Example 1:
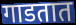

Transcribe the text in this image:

गाडतात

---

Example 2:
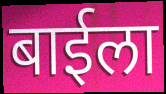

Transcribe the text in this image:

बाईला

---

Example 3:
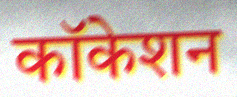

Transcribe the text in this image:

कॉकेशन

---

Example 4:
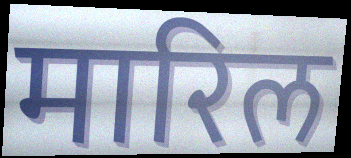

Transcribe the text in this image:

मारिल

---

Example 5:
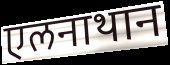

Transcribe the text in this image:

एलनाथान